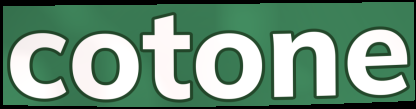
cotone